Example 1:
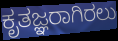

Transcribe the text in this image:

ಕೃತಜ್ಞರಾಗಿರಲು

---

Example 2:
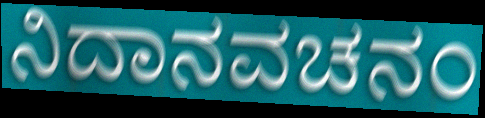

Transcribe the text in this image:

ನಿದಾನವಚನಂ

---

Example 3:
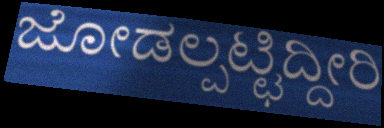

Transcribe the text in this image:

ಜೋಡಲ್ಪಟ್ಟಿದ್ದೀರಿ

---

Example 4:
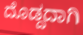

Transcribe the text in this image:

ದೊಡ್ದದಾಗಿ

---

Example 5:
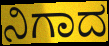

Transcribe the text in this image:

ನಿಗಾದ